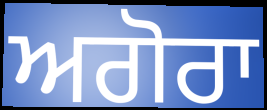
ਅਗੋਰਾ